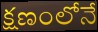
క్షణంలోనే